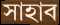
সাহাব